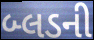
બ્લડની